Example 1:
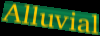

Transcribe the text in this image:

Alluvial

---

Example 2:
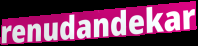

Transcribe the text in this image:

renudandekar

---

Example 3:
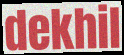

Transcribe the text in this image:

dekhil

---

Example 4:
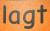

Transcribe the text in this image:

lagt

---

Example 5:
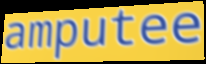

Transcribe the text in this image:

amputee